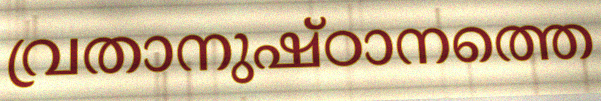
വ്രതാനുഷ്ഠാനത്തെ